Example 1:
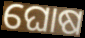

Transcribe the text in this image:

ଘୋଷ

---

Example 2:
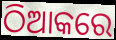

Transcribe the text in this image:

ଠିଆକରେ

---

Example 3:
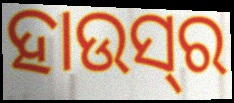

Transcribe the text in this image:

ହାଉସ୍‌ର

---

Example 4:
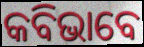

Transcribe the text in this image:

କବିଭାବେ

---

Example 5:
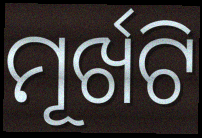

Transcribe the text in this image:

ମୂର୍ଖଟି